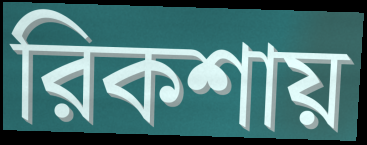
রিকশায়